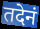
तदेनं